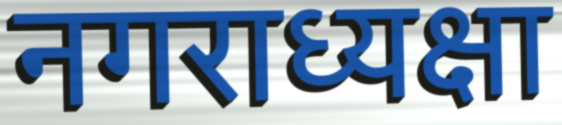
नगराध्यक्षा